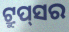
ଟ୍ରୁପ୍‌ସର